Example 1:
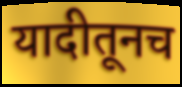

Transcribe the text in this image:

यादीतूनच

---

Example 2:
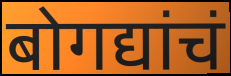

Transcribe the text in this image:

बोगद्यांचं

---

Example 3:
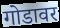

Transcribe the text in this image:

गोडावर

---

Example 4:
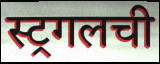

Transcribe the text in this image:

स्ट्रगलची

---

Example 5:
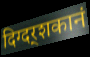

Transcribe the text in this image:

दिग्दर्शकानं